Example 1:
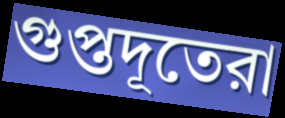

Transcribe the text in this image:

গুপ্তদূতেরা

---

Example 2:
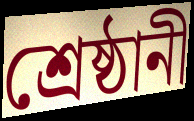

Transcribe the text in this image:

শ্রেষ্ঠানী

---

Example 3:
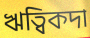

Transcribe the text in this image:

ঋত্বিকদা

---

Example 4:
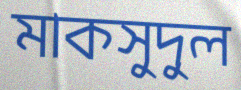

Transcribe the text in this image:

মাকসুদুল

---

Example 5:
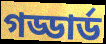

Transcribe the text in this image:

গড্ডার্ড